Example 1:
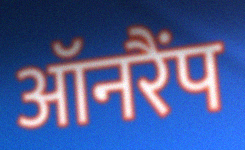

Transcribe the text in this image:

ऑनरैंप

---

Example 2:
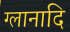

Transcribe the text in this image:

ग्लानादि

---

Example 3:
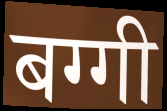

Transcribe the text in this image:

बग्गी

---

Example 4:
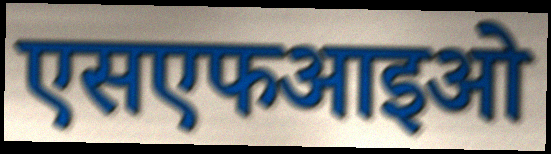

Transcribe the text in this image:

एसएफआइओ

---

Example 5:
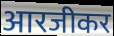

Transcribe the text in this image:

आरजीकर